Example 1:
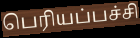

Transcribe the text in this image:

பெரியப்பச்சி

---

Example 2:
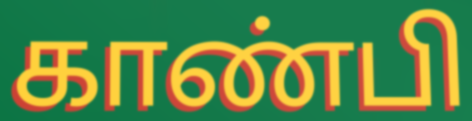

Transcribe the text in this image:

காண்பி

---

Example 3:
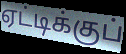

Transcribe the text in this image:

ஏட்டிக்குப்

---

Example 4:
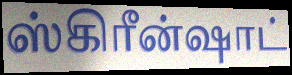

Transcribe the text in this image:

ஸ்கிரீன்ஷாட்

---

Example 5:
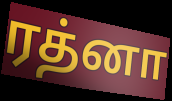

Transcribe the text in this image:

ரத்னா